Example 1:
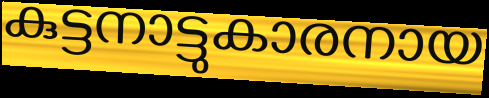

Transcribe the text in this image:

കുട്ടനാട്ടുകാരനായ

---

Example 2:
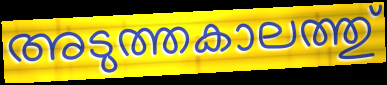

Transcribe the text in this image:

അടുത്തകാലത്തു്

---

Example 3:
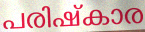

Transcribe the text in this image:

പരിഷ്‌കാര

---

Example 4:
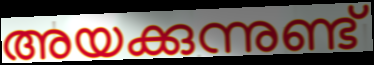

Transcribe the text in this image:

അയക്കുന്നുണ്ട്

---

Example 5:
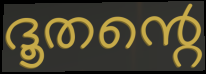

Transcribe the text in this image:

ദൂതന്റെ